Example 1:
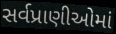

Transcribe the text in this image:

સર્વપ્રાણીઓમાં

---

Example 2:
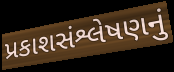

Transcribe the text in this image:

પ્રકાશસંશ્લેષણનું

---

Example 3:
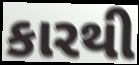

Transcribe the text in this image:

કારથી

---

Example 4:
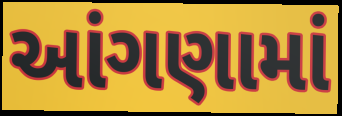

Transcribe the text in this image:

આંગણામાં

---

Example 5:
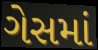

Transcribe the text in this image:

ગેસમાં